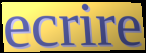
ecrire